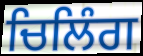
ਚਿਲਿੰਗ